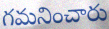
గమనించారు